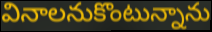
వినాలనుకొంటున్నాను